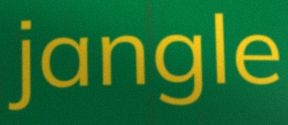
jangle